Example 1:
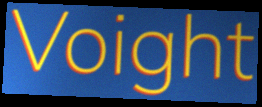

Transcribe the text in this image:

Voight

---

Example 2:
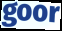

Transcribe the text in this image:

goor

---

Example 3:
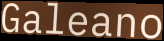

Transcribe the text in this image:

Galeano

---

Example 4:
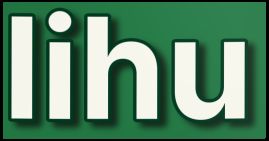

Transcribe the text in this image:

lihu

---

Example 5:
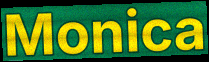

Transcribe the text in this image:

Monica